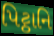
પિટ્ઠાનિ